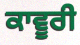
ਕਾਵੂਰੀ